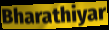
Bharathiyar